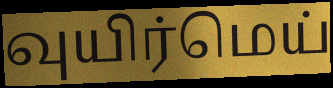
வுயிர்மெய்